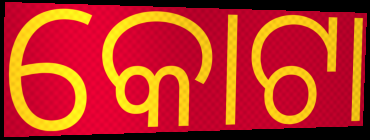
କୋଟା